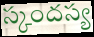
స్కందస్య